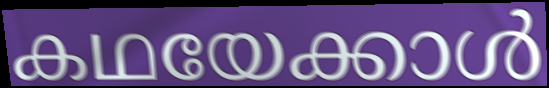
കഥയേക്കാൾ